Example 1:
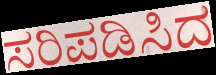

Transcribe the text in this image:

ಸರಿಪಡಿಸಿದ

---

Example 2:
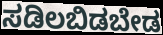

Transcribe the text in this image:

ಸಡಿಲಬಿಡಬೇಡ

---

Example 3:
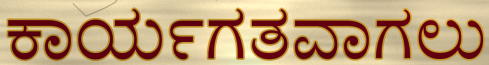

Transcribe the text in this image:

ಕಾರ್ಯಗತವಾಗಲು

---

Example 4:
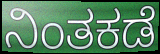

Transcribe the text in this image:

ನಿಂತಕಡೆ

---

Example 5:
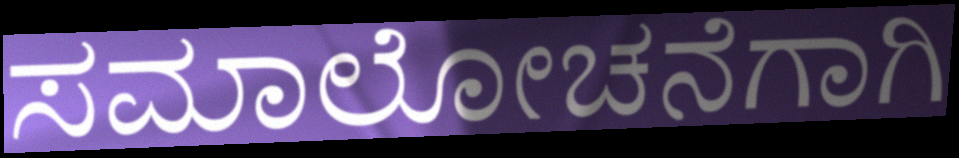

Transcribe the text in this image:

ಸಮಾಲೋಚನೆಗಾಗಿ